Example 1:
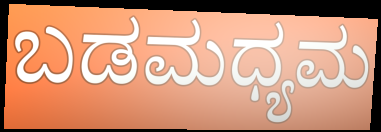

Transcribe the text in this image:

ಬಡಮಧ್ಯಮ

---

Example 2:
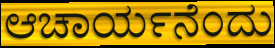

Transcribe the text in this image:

ಆಚಾರ್ಯನೆಂದು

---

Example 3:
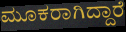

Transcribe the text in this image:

ಮೂಕರಾಗಿದ್ದಾರೆ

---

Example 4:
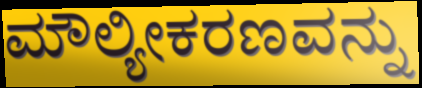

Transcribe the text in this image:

ಮೌಲ್ಯೀಕರಣವನ್ನು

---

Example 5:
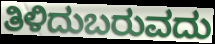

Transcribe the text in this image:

ತಿಳಿದುಬರುವದು